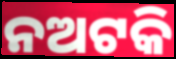
ନଅଟକି